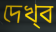
দেখ্‌ব